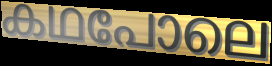
കഥപോലെ